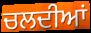
ਚਲਦੀਆਂ